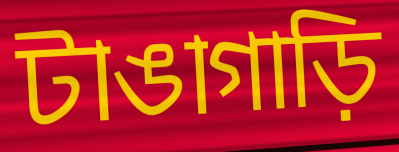
টাঙাগাড়ি